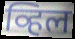
व्हिल